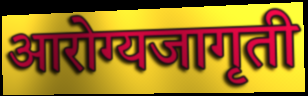
आरोग्यजागृती